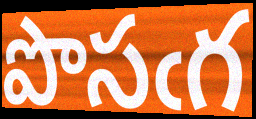
పొసఁగ